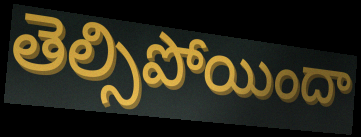
తెల్సిపోయిందా